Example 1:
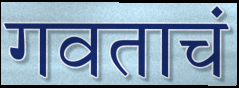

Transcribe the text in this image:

गवताचं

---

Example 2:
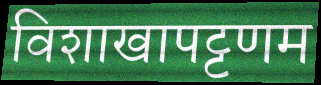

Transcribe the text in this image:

विशाखापट्टणम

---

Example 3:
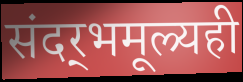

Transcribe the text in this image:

संदर्भमूल्यही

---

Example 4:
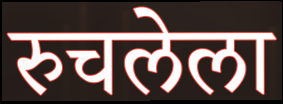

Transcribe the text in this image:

रुचलेला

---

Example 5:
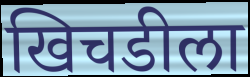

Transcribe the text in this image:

खिचडीला